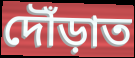
দৌঁড়াত